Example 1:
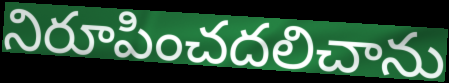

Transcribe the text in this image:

నిరూపించదలిచాను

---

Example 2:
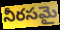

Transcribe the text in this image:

నీరసమై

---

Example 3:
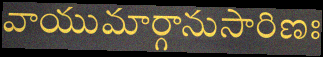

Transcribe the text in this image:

వాయుమార్గానుసారిణః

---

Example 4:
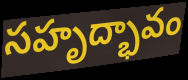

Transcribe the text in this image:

సహృద్భావం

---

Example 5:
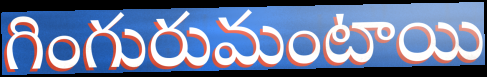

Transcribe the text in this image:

గింగురుమంటాయి